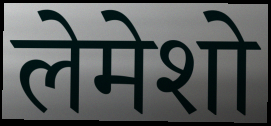
लेमेशो